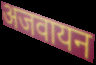
अजवायन